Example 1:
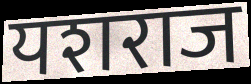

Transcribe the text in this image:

यशराज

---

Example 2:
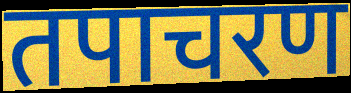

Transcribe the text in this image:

तपाचरण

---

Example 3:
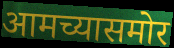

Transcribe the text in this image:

आमच्यासमोर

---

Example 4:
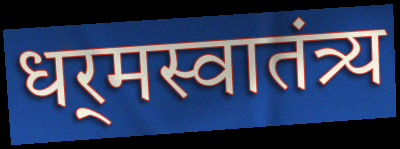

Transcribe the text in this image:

धर्मस्वातंत्र्य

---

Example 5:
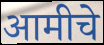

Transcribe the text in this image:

आमीचे